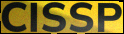
CISSP